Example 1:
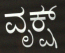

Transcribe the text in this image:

ವೃಕ್ಷ್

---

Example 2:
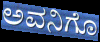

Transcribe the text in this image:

ಅವನಿಗೊ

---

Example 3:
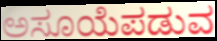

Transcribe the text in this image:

ಅಸೂಯೆಪಡುವ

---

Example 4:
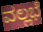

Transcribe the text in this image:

ವಲ್ಲಭೆ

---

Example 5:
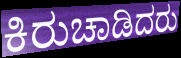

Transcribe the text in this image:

ಕಿರುಚಾಡಿದರು